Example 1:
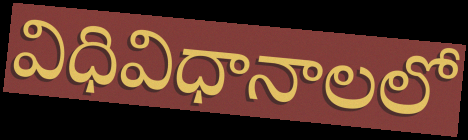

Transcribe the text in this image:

విధివిధానాలలో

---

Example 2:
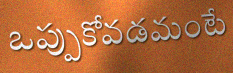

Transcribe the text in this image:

ఒప్పుకోవడమంటే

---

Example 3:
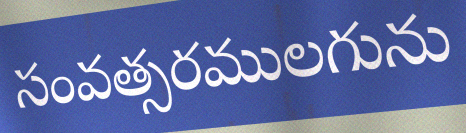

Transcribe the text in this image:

సంవత్సరములగును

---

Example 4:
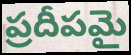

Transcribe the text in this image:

ప్రదీపమై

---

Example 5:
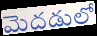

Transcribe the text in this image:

మెదడులో